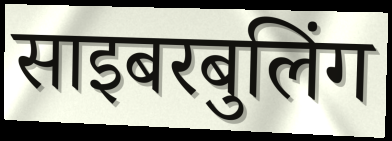
साइबरबुलिंग